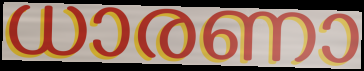
ധാരണാ